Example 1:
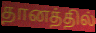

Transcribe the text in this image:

தானத்தில்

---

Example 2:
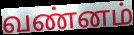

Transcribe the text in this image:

வண்னம்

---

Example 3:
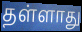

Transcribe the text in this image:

தள்ளாது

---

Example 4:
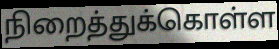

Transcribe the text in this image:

நிறைத்துக்கொள்ள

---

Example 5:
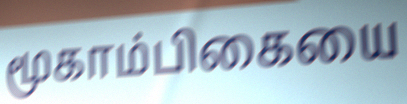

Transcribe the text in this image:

மூகாம்பிகையை